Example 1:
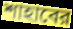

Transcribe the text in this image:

শাহাবের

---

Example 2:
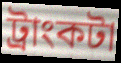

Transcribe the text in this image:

ট্রাংকটা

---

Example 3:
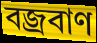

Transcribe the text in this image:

বজ্রবাণ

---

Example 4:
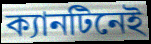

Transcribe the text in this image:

ক্যানটিনেই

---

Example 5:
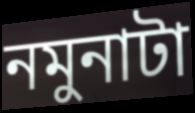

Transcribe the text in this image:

নমুনাটা